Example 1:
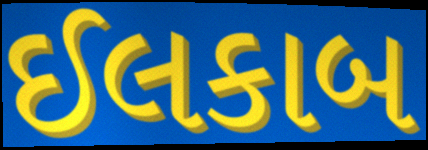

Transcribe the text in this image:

ઈલકાબ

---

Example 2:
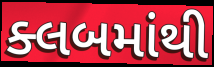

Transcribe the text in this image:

ક્લબમાંથી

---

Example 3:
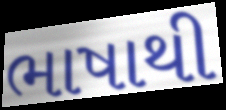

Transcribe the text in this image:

ભાષાથી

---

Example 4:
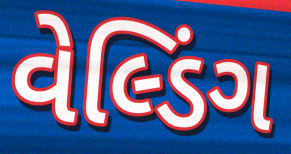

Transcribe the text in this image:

વેલ્ડિંગ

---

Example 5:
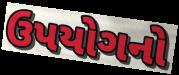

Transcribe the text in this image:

ઉપયોગનો